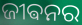
ଜୀଵନର